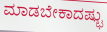
ಮಾಡಬೇಕಾದಷ್ಟು